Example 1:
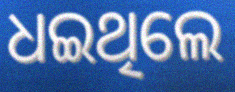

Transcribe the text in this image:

ଧଇଥିଲେ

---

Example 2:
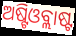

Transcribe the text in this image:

ଅଷ୍ଟିଓବ୍ଲାଷ୍ଟ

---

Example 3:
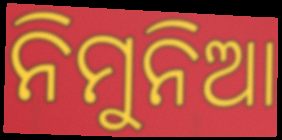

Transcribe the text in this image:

ନିମୁନିଆ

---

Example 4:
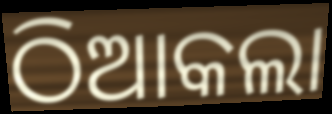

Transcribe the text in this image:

ଠିଆକଲା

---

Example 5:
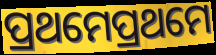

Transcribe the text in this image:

ପ୍ରଥମେପ୍ରଥମେ